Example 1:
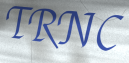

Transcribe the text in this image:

TRNC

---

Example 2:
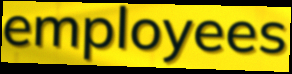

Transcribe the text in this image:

employees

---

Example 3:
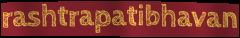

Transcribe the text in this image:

rashtrapatibhavan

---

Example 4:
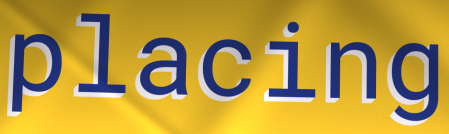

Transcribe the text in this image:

placing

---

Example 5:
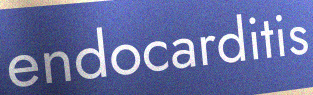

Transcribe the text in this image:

endocarditis